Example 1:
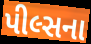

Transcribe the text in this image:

પીલ્સના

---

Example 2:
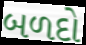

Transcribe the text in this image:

બળદો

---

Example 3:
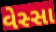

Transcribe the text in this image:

વેસ્સા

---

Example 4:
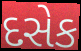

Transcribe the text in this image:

દસેક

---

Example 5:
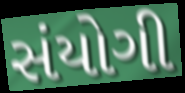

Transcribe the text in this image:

સંયોગી